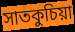
সাতকুচিয়া